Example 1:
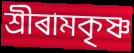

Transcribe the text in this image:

শ্ৰীৰামকৃষ্ণ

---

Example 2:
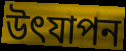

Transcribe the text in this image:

উৎযাপন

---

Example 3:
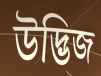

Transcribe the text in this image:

উদ্ভিজ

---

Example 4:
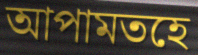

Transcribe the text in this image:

আপামতহে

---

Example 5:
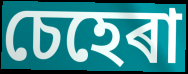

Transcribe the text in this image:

চেহেৰা